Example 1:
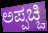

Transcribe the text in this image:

ಅಪ್ಪಚ್ಚಿ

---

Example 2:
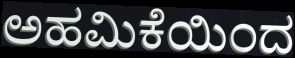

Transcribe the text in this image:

ಅಹಮಿಕೆಯಿಂದ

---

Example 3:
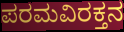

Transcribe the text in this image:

ಪರಮವಿರಕ್ತನ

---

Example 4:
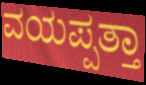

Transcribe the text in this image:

ವಯಪ್ಪತ್ತಾ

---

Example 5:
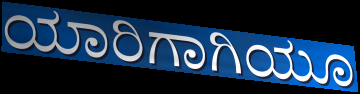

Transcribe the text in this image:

ಯಾರಿಗಾಗಿಯೂ